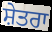
ਸ਼ੇਤਰਾ